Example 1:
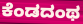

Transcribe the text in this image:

ಕೆಂಡದಂಥ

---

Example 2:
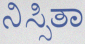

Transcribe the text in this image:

ನಿಸ್ಸಿತಾ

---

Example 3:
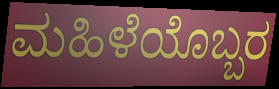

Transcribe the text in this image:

ಮಹಿಳೆಯೊಬ್ಬರ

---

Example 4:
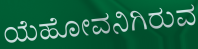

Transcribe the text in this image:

ಯೆಹೋವನಿಗಿರುವ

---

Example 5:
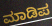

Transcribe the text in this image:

ಮಾಡಿಪ